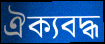
ঐক্যবদ্ধ